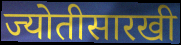
ज्योतीसारखी